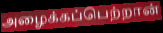
அழைக்கப்பெற்றான்